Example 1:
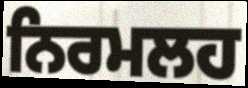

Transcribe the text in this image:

ਨਿਰਮਲਹ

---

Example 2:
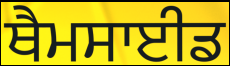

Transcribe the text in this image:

ਥੈਮਸਾਈਡ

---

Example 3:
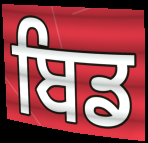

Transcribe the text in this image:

ਬਿਡ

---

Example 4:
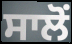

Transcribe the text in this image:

ਸਾਲੋਂ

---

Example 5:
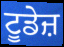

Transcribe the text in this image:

ਟੂਡੇਜ਼